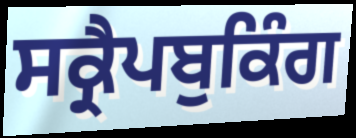
ਸਕ੍ਰੈਪਬੁਕਿੰਗ